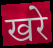
खरे